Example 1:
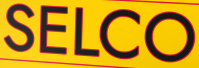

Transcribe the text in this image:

SELCO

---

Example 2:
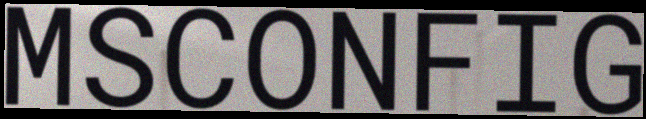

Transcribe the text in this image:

MSCONFIG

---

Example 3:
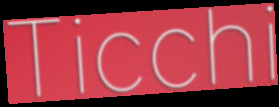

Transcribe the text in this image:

Ticchi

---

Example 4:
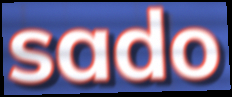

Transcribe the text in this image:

sado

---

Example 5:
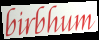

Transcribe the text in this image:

birbhum